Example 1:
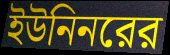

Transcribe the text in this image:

ইউনিনরের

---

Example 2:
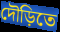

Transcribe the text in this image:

দৌড়িতে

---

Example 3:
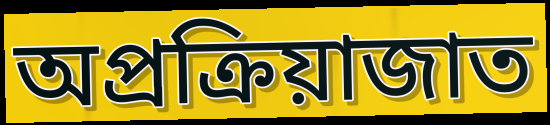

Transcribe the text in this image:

অপ্রক্রিয়াজাত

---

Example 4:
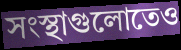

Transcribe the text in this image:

সংস্থাগুলোতেও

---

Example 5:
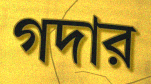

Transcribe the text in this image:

গদার